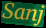
Sanj